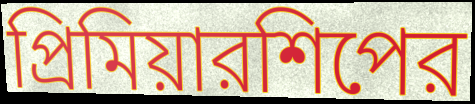
প্রিমিয়ারশিপের